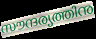
സൗന്ദര്യത്തിനു